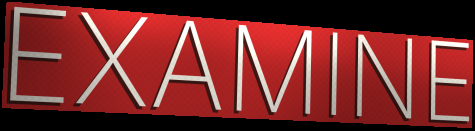
EXAMINE